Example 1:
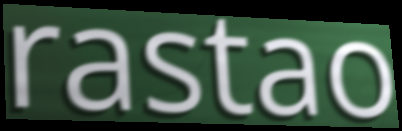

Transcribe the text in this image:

rastao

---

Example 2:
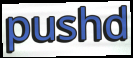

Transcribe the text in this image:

pushd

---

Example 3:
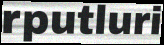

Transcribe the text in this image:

rputluri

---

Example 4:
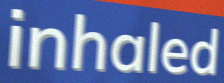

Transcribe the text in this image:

inhaled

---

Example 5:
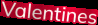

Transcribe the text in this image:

Valentines